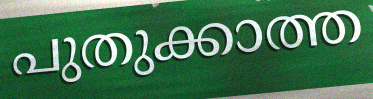
പുതുക്കാത്ത